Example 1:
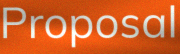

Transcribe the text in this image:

Proposal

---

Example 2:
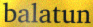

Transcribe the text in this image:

balatun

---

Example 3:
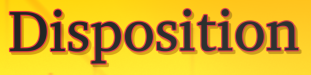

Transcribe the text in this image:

Disposition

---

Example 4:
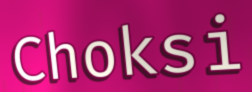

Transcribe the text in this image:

Choksi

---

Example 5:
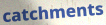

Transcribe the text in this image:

catchments